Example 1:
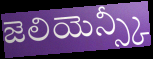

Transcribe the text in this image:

జెలియెన్స్కీ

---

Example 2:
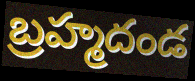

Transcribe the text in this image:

బ్రహ్మదండ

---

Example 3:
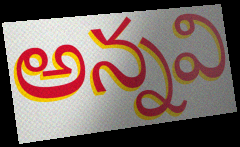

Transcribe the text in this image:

అన్నవి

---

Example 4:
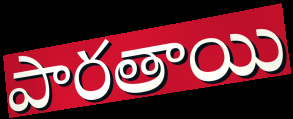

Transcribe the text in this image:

పారతాయి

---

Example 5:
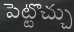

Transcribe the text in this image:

పెట్టొచ్చు